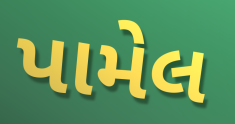
પામેલ